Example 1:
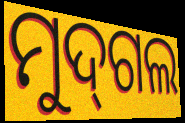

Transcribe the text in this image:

ମୁଦ୍‌ଗଲ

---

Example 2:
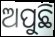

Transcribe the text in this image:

ଅପୁଛି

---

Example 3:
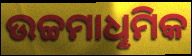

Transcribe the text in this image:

ଉଚ୍ଚମାଧୢମିକ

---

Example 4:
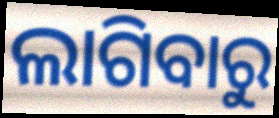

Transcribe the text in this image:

ଲାଗିବାରୁ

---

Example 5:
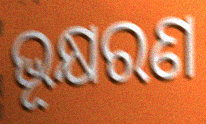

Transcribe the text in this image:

ଭୂକ୍ଷରଣ